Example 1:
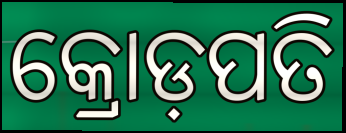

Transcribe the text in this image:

କ୍ରୋଡ଼ପତି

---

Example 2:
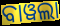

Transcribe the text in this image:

ବାୱଲା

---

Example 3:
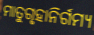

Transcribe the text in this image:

ମାତୁଗୃହାନିର୍ଗମ୍ୟ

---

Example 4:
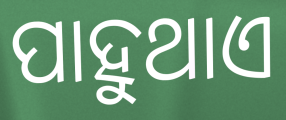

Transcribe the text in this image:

ପାହୁଥାଏ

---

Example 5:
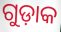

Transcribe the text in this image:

ଗୁଡ଼ାକ